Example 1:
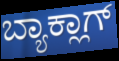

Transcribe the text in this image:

ಬ್ಯಾಕ್ಲಾಗ್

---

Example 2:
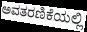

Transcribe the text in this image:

ಅವತರಣಿಕೆಯಲ್ಲಿ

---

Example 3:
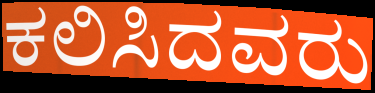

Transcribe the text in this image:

ಕಲಿಸಿದವರು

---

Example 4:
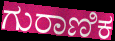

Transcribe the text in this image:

ಗುರಾಣಿಕ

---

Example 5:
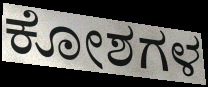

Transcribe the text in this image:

ಕೋಶಗಳ